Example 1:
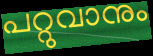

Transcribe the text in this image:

പറ്റുവാനും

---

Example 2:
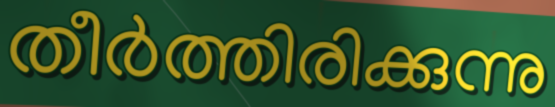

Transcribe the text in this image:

തീർത്തിരിക്കുന്നു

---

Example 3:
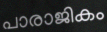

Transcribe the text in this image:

പാരാജികം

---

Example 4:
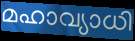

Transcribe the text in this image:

മഹാവ്യാധി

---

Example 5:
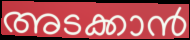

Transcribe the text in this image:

അടക്കാൻ